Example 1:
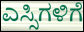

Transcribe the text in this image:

ಎಸ್ಸಿಗಳಿಗೆ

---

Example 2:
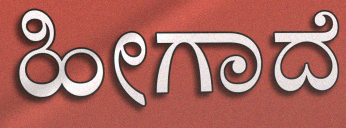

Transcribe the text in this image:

ಹೀಗಾದೆ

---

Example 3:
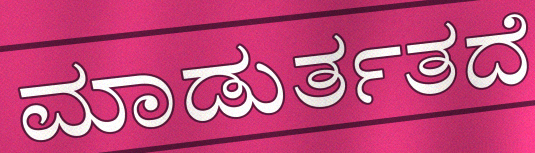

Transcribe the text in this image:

ಮಾಡುರ್ತತದೆ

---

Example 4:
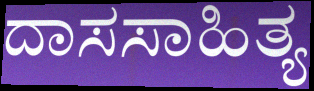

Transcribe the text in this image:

ದಾಸಸಾಹಿತ್ಯ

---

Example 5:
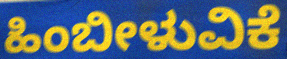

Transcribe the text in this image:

ಹಿಂಬೀಳುವಿಕೆ